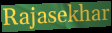
Rajasekhar